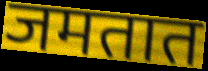
जमतात